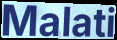
Malati